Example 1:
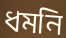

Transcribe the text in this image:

ধমনি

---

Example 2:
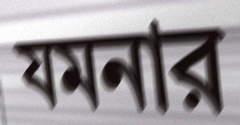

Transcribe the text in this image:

যমনার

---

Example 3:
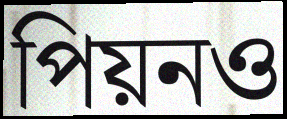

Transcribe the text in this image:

পিয়নও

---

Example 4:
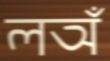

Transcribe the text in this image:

লঅঁ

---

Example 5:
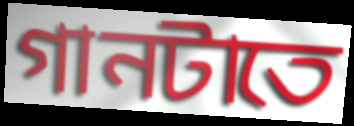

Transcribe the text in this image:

গানটাতে